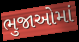
ભુજાઓમાં